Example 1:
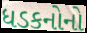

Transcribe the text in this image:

ધડકનોનો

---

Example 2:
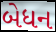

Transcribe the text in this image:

બેધન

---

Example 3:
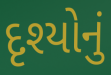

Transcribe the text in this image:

દૃશ્યોનું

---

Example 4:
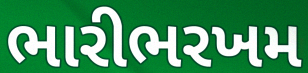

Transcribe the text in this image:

ભારીભરખમ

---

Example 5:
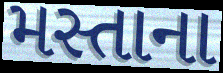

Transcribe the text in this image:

મસ્તાના